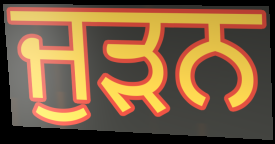
ਜੁਡ਼ਨ